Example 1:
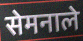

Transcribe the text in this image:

सेमनाले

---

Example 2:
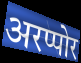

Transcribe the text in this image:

अरप्पोर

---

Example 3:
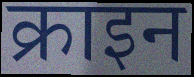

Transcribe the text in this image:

क्राइन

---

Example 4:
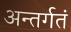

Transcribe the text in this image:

अन्तर्गतं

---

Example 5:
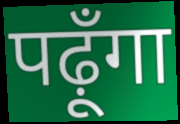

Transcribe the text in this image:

पढ़ूँगा